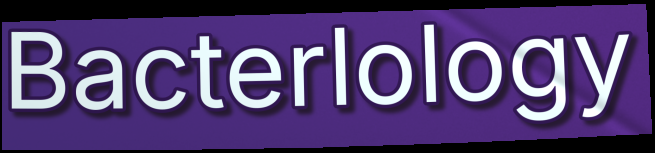
Bacterlology